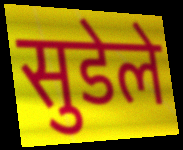
सुडेले